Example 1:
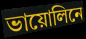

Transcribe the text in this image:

ভায়োলিনে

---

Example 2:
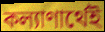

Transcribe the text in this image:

কল্যাণার্থেই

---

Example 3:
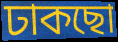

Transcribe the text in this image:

ঢাকছো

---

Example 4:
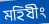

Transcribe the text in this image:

মহিষীং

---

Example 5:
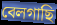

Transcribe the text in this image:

বেলগাছি